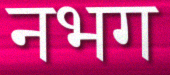
नभग